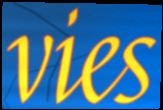
vies